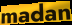
madan